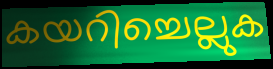
കയറിച്ചെല്ലുക